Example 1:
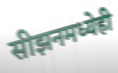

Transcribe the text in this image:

सीझनमध्येही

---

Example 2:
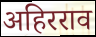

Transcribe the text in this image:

अहिरराव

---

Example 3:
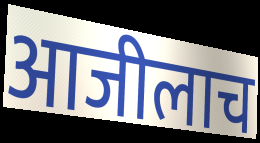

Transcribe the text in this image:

आजीलाच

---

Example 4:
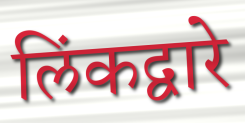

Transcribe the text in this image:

लिंकद्वारे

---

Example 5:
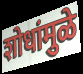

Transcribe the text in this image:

शोधांमुळे